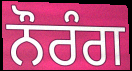
ਨੌਰੰਗ